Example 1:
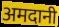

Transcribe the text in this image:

अमदानी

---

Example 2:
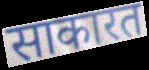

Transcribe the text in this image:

साकारत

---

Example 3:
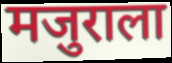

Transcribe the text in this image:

मजुराला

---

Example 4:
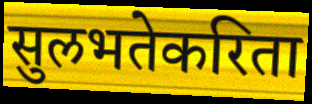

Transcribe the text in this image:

सुलभतेकरिता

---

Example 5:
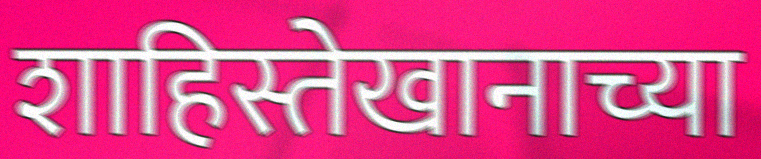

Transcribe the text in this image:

शाहिस्तेखानाच्या